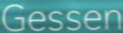
Gessen